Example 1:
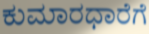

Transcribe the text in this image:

ಕುಮಾರಧಾರೆಗೆ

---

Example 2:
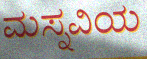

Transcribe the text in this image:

ಮಸ್ನವಿಯ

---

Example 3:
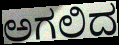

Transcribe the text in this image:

ಅಗಲಿದ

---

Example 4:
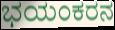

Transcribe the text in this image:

ಭಯಂಕರನ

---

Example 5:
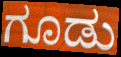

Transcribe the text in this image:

ಗೂಡು